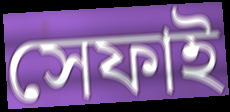
সেফাই